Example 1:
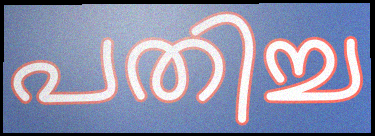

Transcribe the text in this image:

പതിച്ച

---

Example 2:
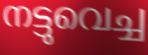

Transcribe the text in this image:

നട്ടുവെച്ച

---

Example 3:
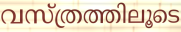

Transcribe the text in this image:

വസ്ത്രത്തിലൂടെ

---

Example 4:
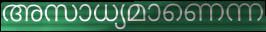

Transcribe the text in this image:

അസാധ്യമാണെന്ന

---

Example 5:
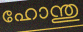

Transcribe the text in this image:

ഹോന്തു